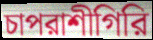
চাপরাশীগিরি